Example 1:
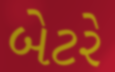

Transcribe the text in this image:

બેટરે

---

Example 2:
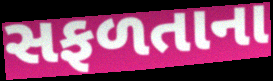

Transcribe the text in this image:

સફળતાના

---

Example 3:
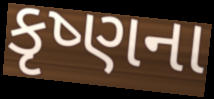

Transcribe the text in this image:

કૃષ્ણના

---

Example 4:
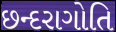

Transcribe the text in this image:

છન્દરાગોતિ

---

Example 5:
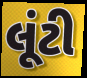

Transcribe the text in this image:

લૂંટી